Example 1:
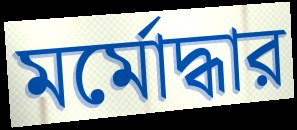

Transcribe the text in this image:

মর্মোদ্ধার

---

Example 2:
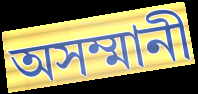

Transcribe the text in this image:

অসম্মানী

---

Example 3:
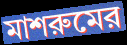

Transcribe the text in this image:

মাশরুমের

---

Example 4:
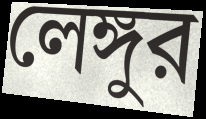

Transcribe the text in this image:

লেঙ্গুর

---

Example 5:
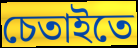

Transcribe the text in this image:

চেতাইতে